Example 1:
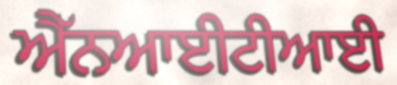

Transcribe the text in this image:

ਐੱਨਆਈਟੀਆਈ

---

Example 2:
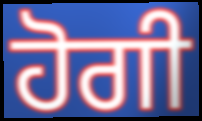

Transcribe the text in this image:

ਹੋਗੀ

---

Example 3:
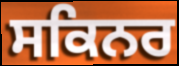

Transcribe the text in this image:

ਸਕਿਨਰ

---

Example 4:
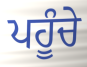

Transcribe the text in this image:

ਪਹੂੰਚੇ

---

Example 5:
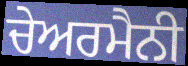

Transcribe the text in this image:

ਚੇਅਰਮੈਨੀ